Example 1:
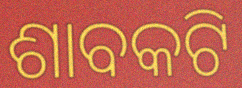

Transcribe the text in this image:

ଶାବକଟି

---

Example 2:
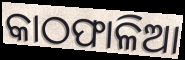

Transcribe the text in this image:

କାଠଫାଳିଆ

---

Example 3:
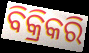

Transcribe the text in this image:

ବିକ୍ରିକରି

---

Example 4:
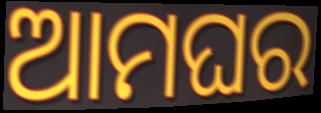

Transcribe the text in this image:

ଆମଘର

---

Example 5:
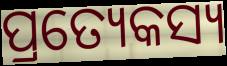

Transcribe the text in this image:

ପ୍ରତ୍ୟେକସ୍ୟ